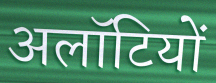
अलॉटियों